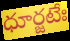
ధూర్జటేః